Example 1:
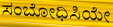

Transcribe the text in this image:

ಸಂಬೋಧಿಸಿಯೇ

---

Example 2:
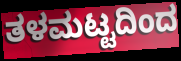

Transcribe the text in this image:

ತಳಮಟ್ಟದಿಂದ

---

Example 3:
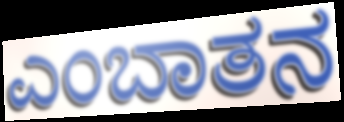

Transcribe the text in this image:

ಎಂಬಾತನ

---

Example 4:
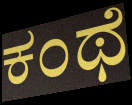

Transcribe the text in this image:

ಕಂಥೆ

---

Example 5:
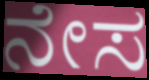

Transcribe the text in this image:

ನೇಸ